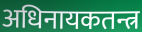
अधिनायकतन्त्र